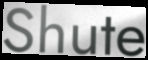
Shute